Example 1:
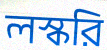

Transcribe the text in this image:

লস্করি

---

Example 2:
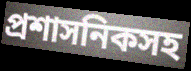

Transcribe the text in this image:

প্রশাসনিকসহ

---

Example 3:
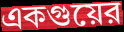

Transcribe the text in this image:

একগুয়ের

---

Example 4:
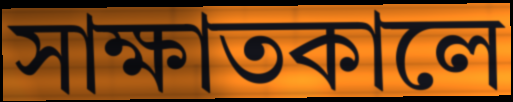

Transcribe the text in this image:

সাক্ষাতকালে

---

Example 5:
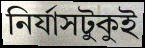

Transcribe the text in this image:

নির্যাসটুকুই